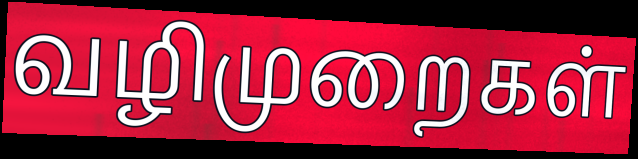
வழிமுறைகள்